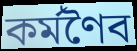
কর্মণৈব